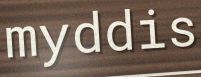
myddis